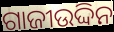
ଗାଜୀଉଦ୍ଦିନ